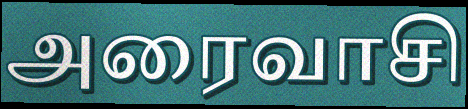
அரைவாசி